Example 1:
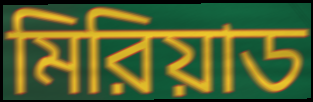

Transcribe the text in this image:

মিরিয়াড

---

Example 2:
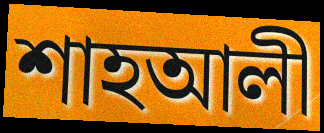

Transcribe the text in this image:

শাহআলী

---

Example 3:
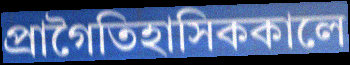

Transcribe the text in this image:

প্রাগৈতিহাসিককালে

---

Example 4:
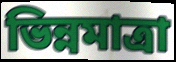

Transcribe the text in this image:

ভিন্নমাত্রা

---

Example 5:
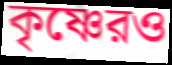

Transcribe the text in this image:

কৃষ্ণেরও